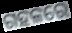
ଗହଳରେ